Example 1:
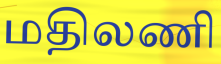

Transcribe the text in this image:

மதிலணி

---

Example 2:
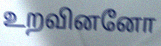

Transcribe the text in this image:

உறவினனோ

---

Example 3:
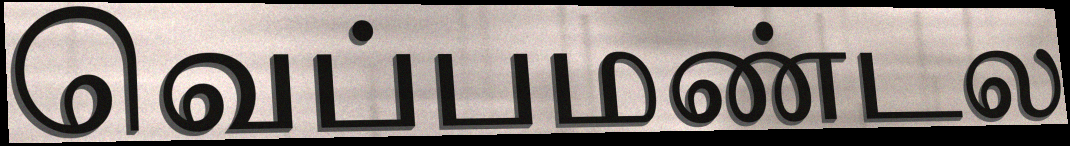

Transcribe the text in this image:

வெப்பமண்டல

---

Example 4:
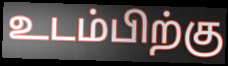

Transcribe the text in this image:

உடம்பிற்கு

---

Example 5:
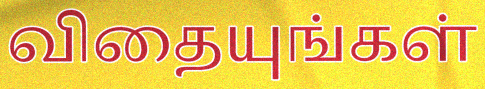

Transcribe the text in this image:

விதையுங்கள்